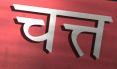
चत्त